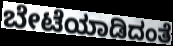
ಬೇಟೆಯಾಡಿದಂತೆ